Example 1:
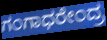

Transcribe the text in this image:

ಗಂಗಾಧರೇಂದ್ರ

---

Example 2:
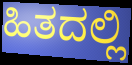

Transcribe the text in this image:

ಹಿತದಲ್ಲಿ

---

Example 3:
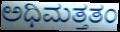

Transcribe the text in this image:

ಅಧಿಮತ್ತತಂ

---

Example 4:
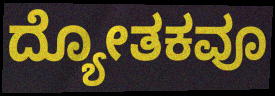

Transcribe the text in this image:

ದ್ಯೋತಕವೂ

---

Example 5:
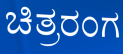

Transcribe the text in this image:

ಚಿತ್ರರಂಗ